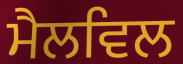
ਮੈਲਵਿਲ